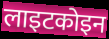
लाइटकोइन